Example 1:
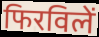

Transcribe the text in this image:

फिरविलें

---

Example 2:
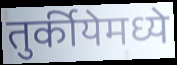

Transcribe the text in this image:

तुर्कीयेमध्ये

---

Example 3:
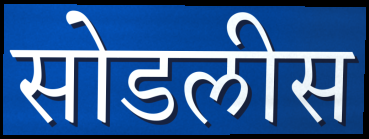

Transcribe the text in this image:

सोडलीस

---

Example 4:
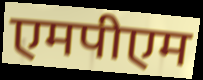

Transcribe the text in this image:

एमपीएम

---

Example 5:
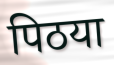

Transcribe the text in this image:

पिठया